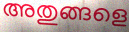
അതുങ്ങളെ